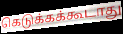
கெடுக்கக்கூடாது